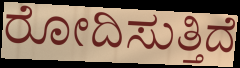
ರೋದಿಸುತ್ತಿದೆ